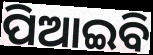
ପିଆଇବି